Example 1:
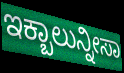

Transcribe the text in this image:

ಇಕ್ಬಾಲುನ್ನೀಸಾ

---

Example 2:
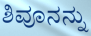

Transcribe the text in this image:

ಶಿವೂನನ್ನು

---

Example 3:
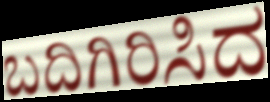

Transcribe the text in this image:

ಬದಿಗಿರಿಸಿದ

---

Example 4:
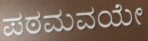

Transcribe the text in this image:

ಪಠಮವಯೇ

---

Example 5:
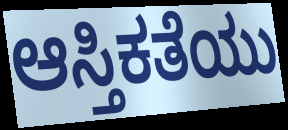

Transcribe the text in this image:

ಆಸ್ತಿಕತೆಯು